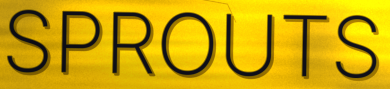
SPROUTS